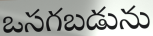
ఒసగబడును